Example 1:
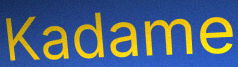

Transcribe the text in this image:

Kadame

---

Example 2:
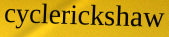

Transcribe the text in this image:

cyclerickshaw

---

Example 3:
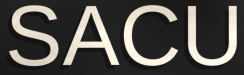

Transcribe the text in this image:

SACU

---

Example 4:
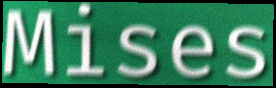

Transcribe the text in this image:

Mises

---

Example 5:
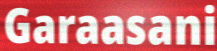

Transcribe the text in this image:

Garaasani